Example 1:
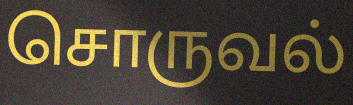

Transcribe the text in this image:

சொருவல்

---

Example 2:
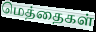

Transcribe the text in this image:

மெத்தைகள்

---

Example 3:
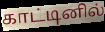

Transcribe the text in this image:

காட்டினில்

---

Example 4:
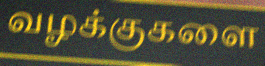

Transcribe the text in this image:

வழக்குகளை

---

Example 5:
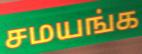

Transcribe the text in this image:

சமயங்க